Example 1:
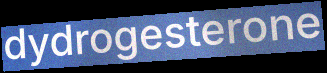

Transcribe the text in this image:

dydrogesterone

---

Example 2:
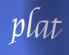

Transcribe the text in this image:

plat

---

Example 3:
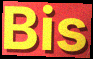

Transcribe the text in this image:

Bis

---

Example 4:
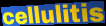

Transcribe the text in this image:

cellulitis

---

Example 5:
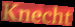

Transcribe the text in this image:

Knecht